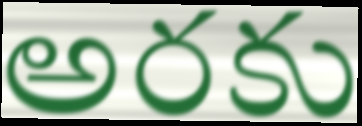
అరకు